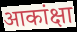
आकांक्षा